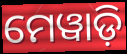
ମେୱାଡ଼ି